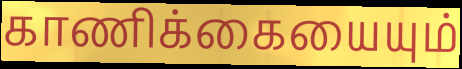
காணிக்கையையும்